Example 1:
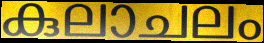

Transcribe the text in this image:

കുലാചലം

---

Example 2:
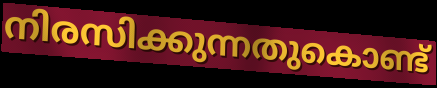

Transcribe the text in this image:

നിരസിക്കുന്നതുകൊണ്ട്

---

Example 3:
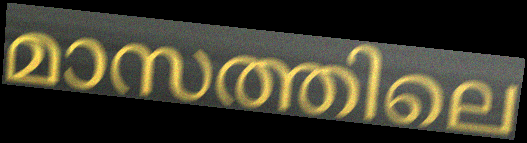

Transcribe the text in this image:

മാസത്തിലെ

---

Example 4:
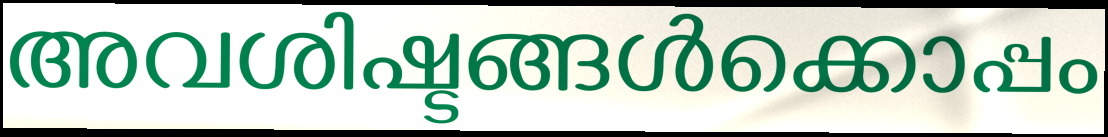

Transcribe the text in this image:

അവശിഷ്ടങ്ങൾക്കൊപ്പം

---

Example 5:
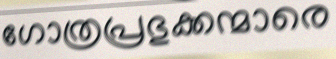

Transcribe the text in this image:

ഗോത്രപ്രഭുക്കന്മാരെ